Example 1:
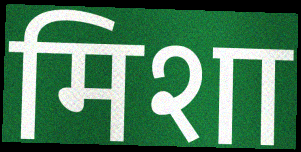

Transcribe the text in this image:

मिशा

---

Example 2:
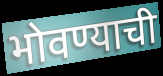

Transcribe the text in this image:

भोवण्याची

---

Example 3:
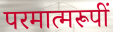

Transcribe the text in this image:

परमात्मरूपीं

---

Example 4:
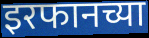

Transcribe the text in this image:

इरफानच्या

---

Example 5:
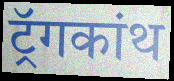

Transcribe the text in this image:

ट्रॅगकांथ